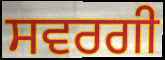
ਸਵਰਗੀ